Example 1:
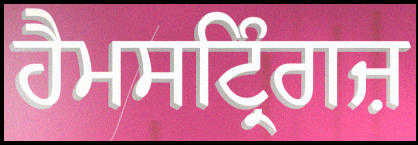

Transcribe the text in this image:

ਹੈਮਸਟ੍ਰਿੰਗਜ਼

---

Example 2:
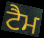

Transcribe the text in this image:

ਟੈਮ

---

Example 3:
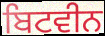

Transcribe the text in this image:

ਬਿਟਵੀਨ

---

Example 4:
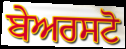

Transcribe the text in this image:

ਬੇਅਰਸਟੋ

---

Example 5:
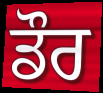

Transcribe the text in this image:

ਡੌਰ